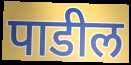
पाडील